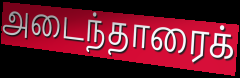
அடைந்தாரைக்